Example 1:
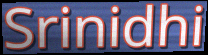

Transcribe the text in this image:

Srinidhi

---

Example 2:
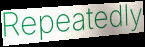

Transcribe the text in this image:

Repeatedly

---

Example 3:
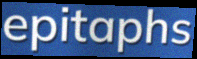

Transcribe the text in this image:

epitaphs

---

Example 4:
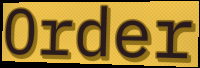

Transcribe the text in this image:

Order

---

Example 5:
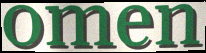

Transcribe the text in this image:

omen